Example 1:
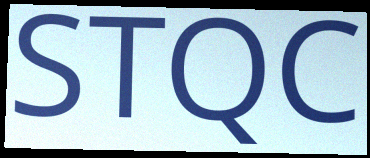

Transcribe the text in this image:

STQC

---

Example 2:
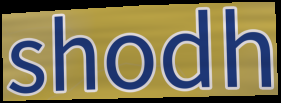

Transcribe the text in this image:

shodh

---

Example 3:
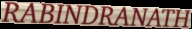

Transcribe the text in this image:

RABINDRANATH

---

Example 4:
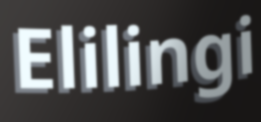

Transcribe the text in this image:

Elilingi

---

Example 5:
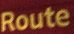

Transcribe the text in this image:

Route